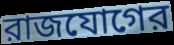
রাজযোগের